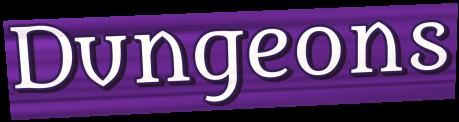
Dungeons